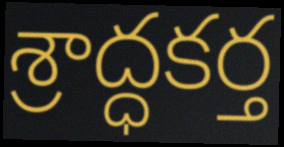
శ్రాద్ధకర్త